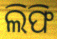
ଲିଫି